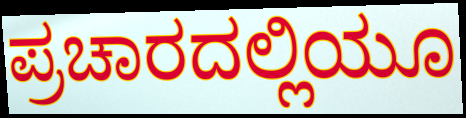
ಪ್ರಚಾರದಲ್ಲಿಯೂ